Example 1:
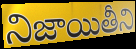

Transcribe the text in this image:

నిజాయితీని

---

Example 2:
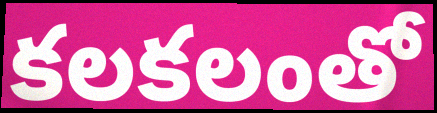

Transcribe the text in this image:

కలకలంతో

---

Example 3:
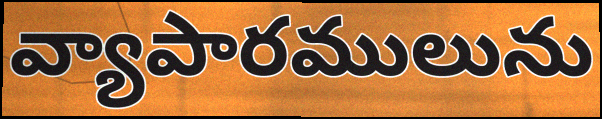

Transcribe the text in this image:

వ్యాపారములును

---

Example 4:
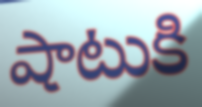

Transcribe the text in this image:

షాటుకి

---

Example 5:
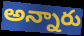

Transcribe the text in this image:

అన్నారు